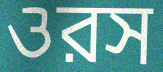
ওরস